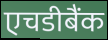
एचडीबैंक